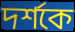
দৰ্শকে